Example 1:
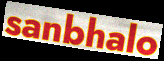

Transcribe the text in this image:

sanbhalo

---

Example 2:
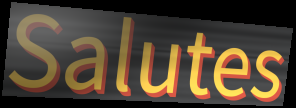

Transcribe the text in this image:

Salutes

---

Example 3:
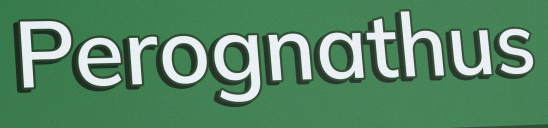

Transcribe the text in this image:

Perognathus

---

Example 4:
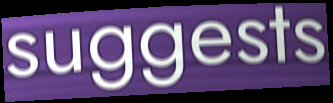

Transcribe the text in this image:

suggests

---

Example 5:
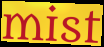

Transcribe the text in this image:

mist